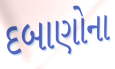
દબાણોના